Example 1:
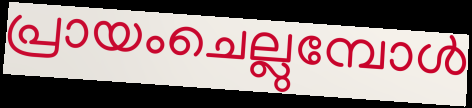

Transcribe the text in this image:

പ്രായംചെല്ലുമ്പോൾ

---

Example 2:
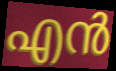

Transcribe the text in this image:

എൻ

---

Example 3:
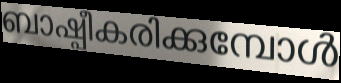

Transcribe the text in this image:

ബാഷ്പീകരിക്കുമ്പോൾ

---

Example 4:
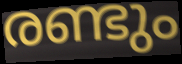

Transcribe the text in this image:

രണ്ടും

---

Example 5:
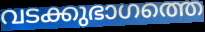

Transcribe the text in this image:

വടക്കുഭാഗത്തെ